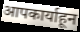
आपकार्याहून